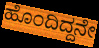
ಹೊಂದಿದ್ದನೇ